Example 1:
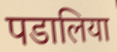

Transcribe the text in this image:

पडालिया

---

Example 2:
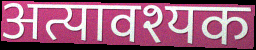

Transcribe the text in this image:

अत्यावश्यक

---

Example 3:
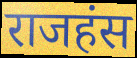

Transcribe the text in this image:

राजहंस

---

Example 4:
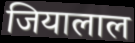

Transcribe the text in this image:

जियालाल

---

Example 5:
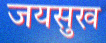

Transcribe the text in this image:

जयसुख